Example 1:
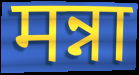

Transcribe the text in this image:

मन्ना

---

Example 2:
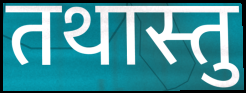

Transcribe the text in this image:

तथास्तु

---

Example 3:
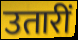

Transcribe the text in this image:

उतारीं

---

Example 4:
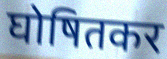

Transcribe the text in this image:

घोषितकर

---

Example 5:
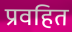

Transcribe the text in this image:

प्रवहित